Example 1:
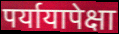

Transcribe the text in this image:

पर्यायापेक्षा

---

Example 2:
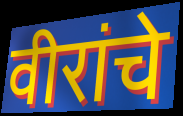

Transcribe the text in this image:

वीरांचे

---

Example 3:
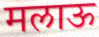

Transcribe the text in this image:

मलाऊ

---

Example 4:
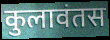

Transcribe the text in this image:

कुलावंतस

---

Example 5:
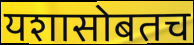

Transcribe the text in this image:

यशासोबतच